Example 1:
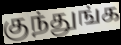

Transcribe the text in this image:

குந்துங்க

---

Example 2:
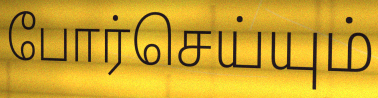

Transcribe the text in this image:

போர்செய்யும்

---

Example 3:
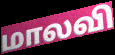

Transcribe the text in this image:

மாலவி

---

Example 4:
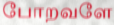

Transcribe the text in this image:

போறவளே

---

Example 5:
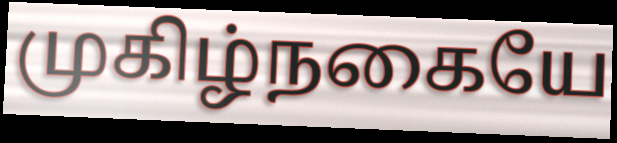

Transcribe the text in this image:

முகிழ்நகையே